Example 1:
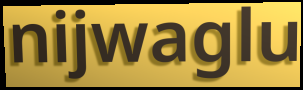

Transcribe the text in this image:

nijwaglu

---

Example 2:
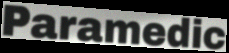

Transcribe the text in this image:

Paramedic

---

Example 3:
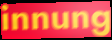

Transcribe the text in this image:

innung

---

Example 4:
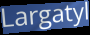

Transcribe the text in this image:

Largatyl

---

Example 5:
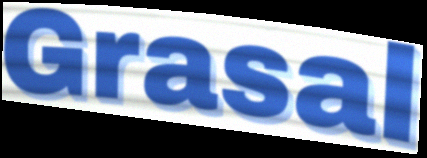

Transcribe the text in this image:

Grasal